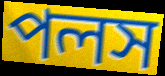
পলস